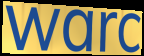
warc